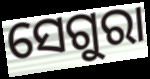
ସେଗୁରା